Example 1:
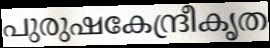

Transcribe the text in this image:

പുരുഷകേന്ദ്രീകൃത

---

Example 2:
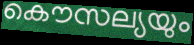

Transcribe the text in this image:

കൌസല്യയും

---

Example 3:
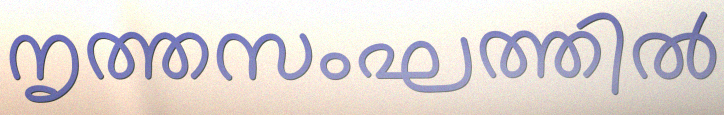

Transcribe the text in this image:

നൃത്തസംഘത്തിൽ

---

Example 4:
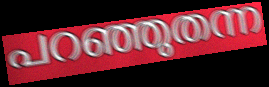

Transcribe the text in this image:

പറഞ്ഞുതന്ന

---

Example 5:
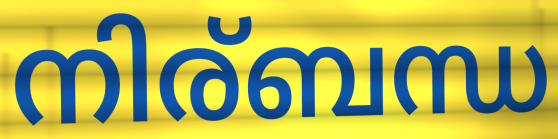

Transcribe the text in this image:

നിര്ബന്ധ